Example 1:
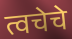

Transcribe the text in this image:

त्वचेचे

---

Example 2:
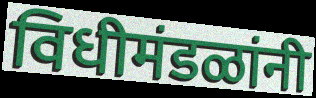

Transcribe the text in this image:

विधीमंडळांनी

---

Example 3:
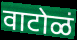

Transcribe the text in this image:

वाटोळं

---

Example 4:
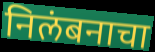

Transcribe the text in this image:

निलंबनाचा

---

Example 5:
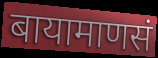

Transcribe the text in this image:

बायामाणसं